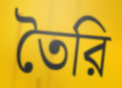
তৈরি